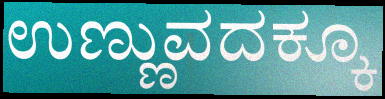
ಉಣ್ಣುವದಕ್ಕೂ